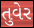
તુવેર